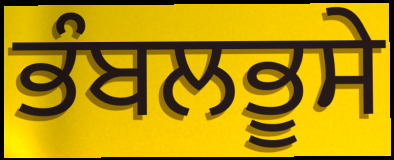
ਭੰਬਲਭੂਸੇ